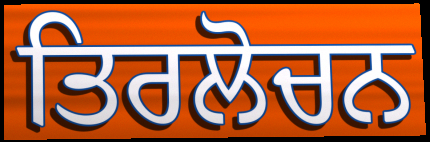
ਤਿਰਲੋਚਨ